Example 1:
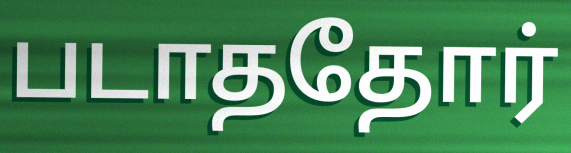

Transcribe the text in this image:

படாததோர்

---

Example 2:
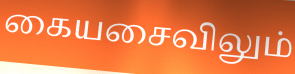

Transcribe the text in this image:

கையசைவிலும்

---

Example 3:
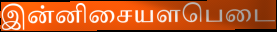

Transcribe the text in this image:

இன்னிசையளபெடை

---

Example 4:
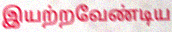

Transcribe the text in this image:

இயற்றவேண்டிய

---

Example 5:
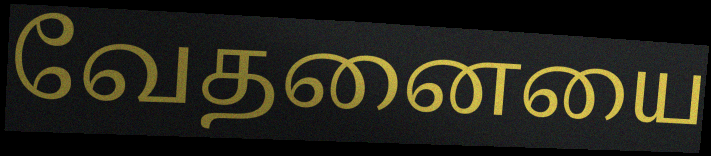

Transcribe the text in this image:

வேதனையை